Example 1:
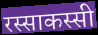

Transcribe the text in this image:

रस्साकस्सी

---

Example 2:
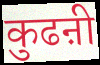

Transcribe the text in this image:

कुढऩी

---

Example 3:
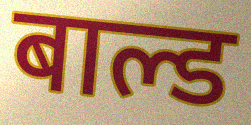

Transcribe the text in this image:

बाल्ड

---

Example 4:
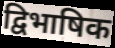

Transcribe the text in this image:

द्विभाषिक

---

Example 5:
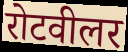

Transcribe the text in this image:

रोटवीलर